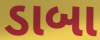
ડાબા